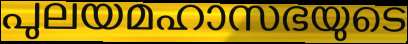
പുലയമഹാസഭയുടെ